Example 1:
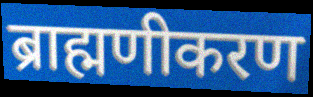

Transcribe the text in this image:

ब्राह्मणीकरण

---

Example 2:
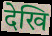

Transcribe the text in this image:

देखि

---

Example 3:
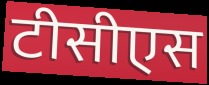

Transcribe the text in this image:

टीसीएस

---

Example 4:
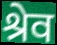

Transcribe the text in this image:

श्रेव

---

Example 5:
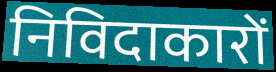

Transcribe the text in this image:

निविदाकारों